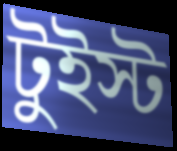
টুইস্ট